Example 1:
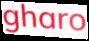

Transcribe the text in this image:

gharo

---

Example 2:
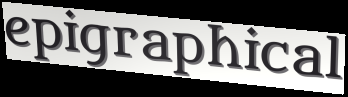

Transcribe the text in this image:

epigraphical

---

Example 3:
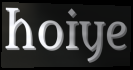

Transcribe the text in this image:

hoiye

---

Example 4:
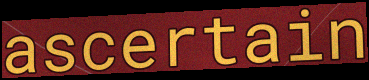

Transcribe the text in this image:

ascertain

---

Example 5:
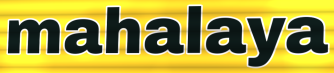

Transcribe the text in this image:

mahalaya